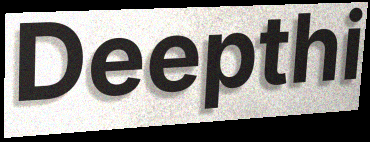
Deepthi